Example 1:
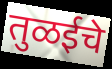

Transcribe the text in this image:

तुळईचे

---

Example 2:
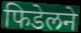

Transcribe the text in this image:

फिडेलने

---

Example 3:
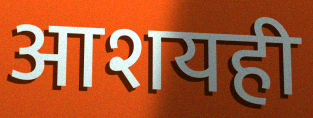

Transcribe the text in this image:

आशयही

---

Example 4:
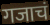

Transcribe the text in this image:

गजाचं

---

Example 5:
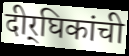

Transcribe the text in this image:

दीर्घिकांची